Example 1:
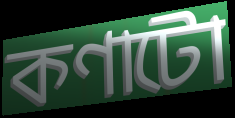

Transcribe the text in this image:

কণাটো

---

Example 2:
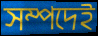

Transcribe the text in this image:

সম্পদেই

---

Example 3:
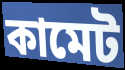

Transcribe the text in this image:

কামেট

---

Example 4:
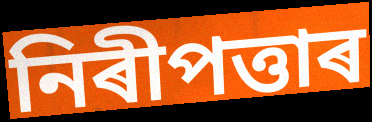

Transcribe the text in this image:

নিৰীপত্তাৰ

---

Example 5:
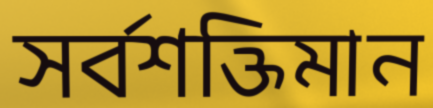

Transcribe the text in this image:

সৰ্বশক্তিমান